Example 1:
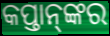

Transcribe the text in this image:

କପ୍ତାନ୍‌ଙ୍କର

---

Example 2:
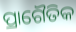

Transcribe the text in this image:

ପ୍ରାଗୈତିକ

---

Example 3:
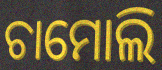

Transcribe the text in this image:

ଚାମୋଲି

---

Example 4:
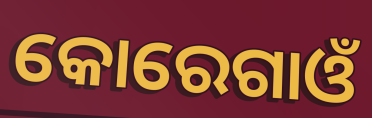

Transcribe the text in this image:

କୋରେଗାଓଁ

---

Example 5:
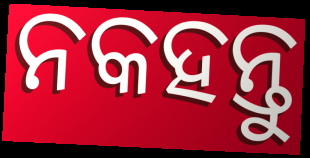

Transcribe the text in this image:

ନକହନ୍ତୁ